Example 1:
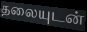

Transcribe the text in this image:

தலையுடன்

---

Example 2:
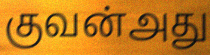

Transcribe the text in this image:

குவன்அது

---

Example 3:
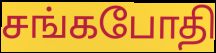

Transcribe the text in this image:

சங்கபோதி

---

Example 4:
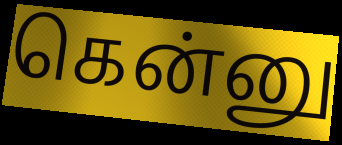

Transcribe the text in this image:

கென்னு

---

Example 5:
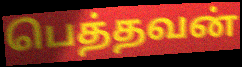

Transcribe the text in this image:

பெத்தவன்